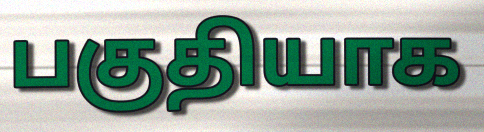
பகுதியாக